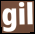
gil